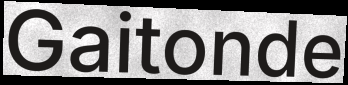
Gaitonde